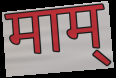
माम्